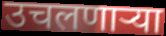
उचलणाऱ्या